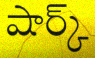
షార్క్